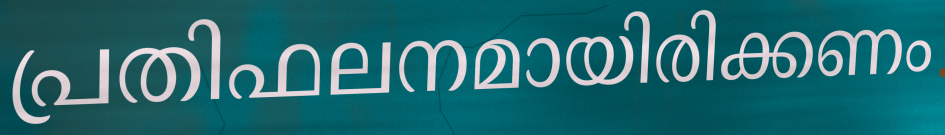
പ്രതിഫലനമായിരിക്കണം